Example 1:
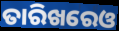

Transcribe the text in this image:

ତାରିଖରେଓ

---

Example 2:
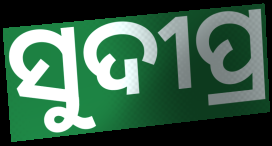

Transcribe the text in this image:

ସୁଦୀପ୍ର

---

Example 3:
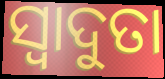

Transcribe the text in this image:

ସ୍ୱାଦୁତା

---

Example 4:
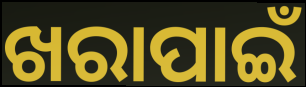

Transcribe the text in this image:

ଖରାପାଇଁ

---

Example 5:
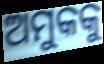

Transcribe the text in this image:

ଅମୁକକୁ